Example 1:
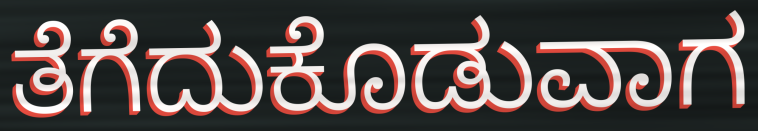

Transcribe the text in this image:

ತೆಗೆದುಕೊಡುವಾಗ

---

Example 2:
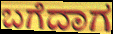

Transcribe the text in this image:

ಬಗೆದಾಗ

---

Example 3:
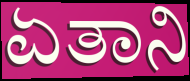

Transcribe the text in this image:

ಏತಾನಿ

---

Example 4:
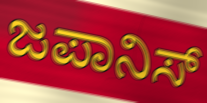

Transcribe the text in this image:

ಜಪಾನಿಸ್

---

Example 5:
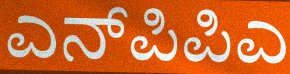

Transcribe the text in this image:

ಎನ್‌ಪಿಪಿಎ